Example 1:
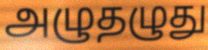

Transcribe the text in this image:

அழுதழுது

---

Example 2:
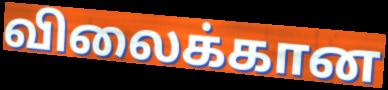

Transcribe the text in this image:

விலைக்கான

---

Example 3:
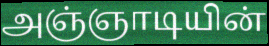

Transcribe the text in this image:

அஞ்ஞாடியின்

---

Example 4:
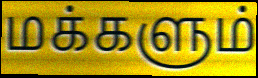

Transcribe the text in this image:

மக்களும்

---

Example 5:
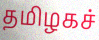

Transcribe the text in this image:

தமிழகச்